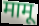
मामू